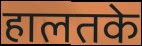
हालतके